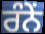
ਰੰਨੇਂ